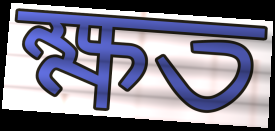
ক্ষত